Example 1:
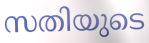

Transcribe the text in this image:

സതിയുടെ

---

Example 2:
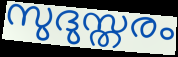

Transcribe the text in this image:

സുദുസ്തരം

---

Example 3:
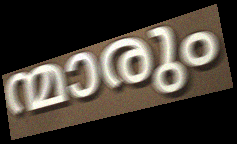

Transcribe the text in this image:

ന്മാരും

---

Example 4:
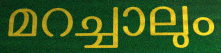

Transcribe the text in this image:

മറച്ചാലും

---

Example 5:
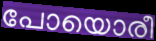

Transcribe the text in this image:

പോയൊരീ